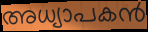
അധ്യാപകൻ